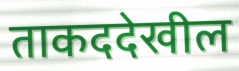
ताकददेखील